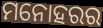
ମନୋହରର